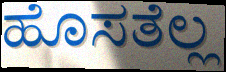
ಹೊಸತೆಲ್ಲ